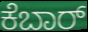
ಕೆಬಾರ್